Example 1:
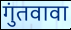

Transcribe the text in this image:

गुंतवावा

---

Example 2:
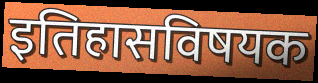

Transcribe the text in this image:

इतिहासविषयक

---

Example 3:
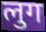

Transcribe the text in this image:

लुग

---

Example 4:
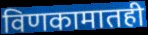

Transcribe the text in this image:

विणकामातही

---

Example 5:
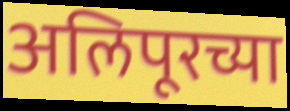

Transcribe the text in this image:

अलिपूरच्या